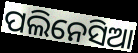
ପଲିନେସିଆ